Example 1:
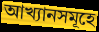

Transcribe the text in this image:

আখ্যানসমূহে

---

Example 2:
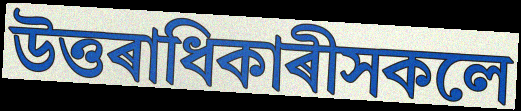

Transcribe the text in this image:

উত্তৰাধিকাৰীসকলে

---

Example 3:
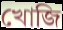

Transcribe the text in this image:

খোজি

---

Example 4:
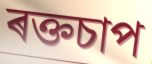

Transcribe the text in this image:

ৰক্তচাপ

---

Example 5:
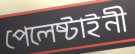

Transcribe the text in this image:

পেলেষ্টাইনী